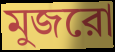
মুজরো